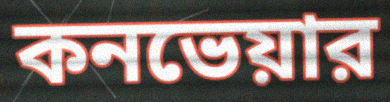
কনভেয়ার